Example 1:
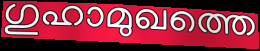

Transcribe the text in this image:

ഗുഹാമുഖത്തെ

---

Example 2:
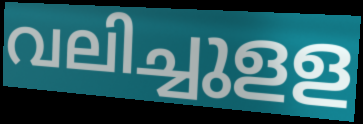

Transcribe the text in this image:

വലിച്ചുളള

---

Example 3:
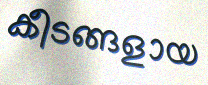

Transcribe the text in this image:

കീടങ്ങളായ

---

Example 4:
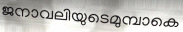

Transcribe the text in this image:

ജനാവലിയുടെമുമ്പാകെ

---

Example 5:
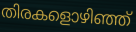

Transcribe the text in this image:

തിരകളൊഴിഞ്ഞ്